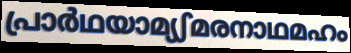
പ്രാർഥയാമ്യഽമരനാഥമഹം